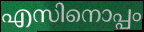
എസിനൊപ്പം